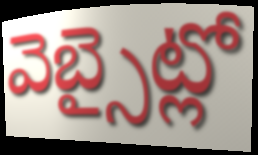
వెబ్సైట్లో